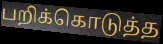
பறிக்கொடுத்த